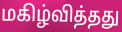
மகிழ்வித்தது